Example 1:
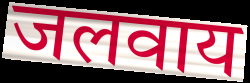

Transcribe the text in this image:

जलवाय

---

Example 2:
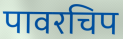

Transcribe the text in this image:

पावरचिप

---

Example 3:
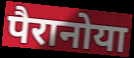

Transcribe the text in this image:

पैरानोया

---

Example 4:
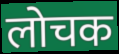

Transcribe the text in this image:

लोचक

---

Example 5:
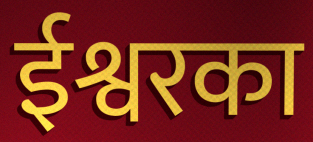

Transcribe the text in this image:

ईश्वरका